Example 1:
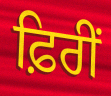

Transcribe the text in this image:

ਫ਼ਿਰੀਂ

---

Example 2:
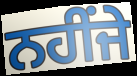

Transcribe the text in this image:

ਨਹੀਂਜੇ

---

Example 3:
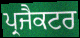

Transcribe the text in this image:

ਪ੍ਰਜੈਕਟਰ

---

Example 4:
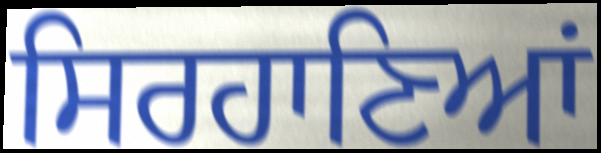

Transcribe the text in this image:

ਸਿਰਹਾਣਿਆਂ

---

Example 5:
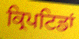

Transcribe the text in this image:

ਕ੍ਰਿਪਟਿਡਾਂ